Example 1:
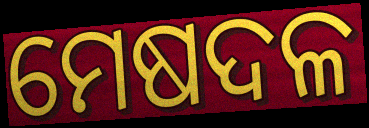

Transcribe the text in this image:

ମେଷଦଳ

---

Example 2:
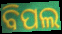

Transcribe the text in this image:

ବିପଲ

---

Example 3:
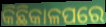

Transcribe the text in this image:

କିଛିକାଳପରେ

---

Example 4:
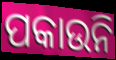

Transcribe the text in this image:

ପକାଉନି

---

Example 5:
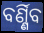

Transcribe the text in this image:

ବର୍ଣ୍ଣିବ